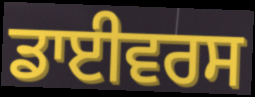
ਡਾਈਵਰਸ